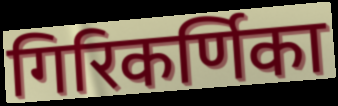
गिरिकर्णिका